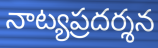
నాట్యప్రదర్శన